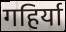
गहिर्या